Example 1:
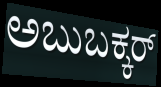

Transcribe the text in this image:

ಅಬುಬಕ್ಕರ್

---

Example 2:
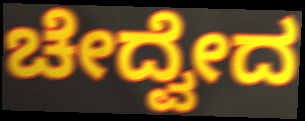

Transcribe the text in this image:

ಚೇದ್ವೇದ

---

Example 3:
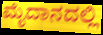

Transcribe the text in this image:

ಮೈದಾನದಲ್ಲಿ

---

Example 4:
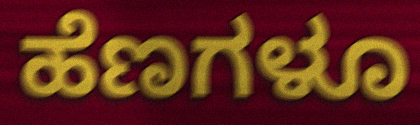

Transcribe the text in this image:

ಹೆಣಗಳೂ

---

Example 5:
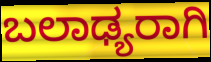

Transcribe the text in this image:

ಬಲಾಢ್ಯರಾಗಿ